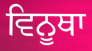
ਵਿਨੂਥਾ